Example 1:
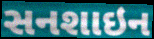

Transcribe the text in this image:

સનશાઇન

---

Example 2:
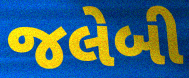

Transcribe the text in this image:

જલેબી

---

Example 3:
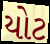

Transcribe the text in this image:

યોટ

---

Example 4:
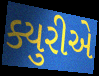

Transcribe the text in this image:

ક્યુરીએ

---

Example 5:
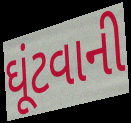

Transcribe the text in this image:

ઘૂંટવાની